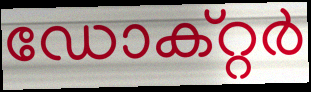
ഡോക്റ്റർ